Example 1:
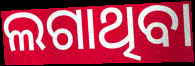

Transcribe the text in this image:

ଲଗାଥିବା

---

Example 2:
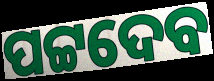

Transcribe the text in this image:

ପଟ୍ଟଦେବ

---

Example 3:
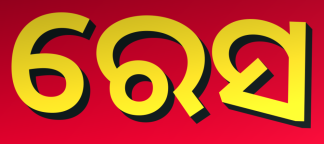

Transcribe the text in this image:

ରେସ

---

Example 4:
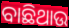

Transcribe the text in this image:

ବାଛିଥାଉ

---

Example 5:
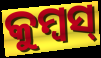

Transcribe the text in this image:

କୁମ୍ବସ୍